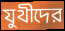
যুথীদের